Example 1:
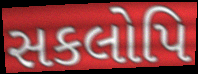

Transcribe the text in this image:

સકલોપિ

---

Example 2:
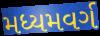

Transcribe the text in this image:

મધ્યમવર્ગ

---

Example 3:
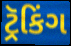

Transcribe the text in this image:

ટ્રૅકિંગ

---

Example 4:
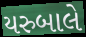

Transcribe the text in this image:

યરુબાલે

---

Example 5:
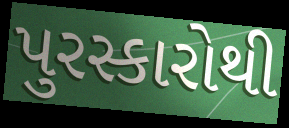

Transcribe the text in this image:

પુરસ્કારોથી